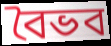
বৈভব